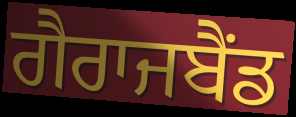
ਗੈਰਾਜਬੈਂਡ